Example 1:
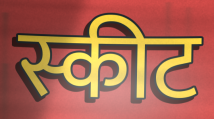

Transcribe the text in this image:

स्‍कीट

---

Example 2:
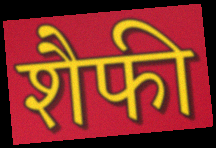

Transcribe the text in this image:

शैफी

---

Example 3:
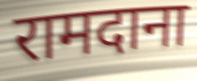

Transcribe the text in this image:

रामदाना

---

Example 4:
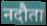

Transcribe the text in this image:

नदौता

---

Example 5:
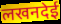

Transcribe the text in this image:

लखनदेई